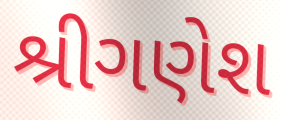
શ્રીગણેશ